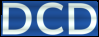
DCD